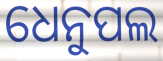
ଧେନୁପଲ